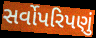
સર્વોપરિપણું